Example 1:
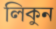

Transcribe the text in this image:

লিকুন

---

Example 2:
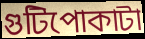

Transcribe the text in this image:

গুটিপোকাটা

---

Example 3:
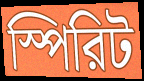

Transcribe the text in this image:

স্পিরিট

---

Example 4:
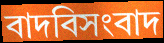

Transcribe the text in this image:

বাদবিসংবাদ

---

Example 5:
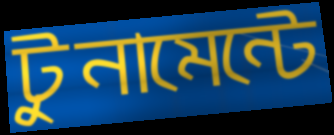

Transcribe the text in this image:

টুনামেন্টে